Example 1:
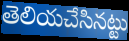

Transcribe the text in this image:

తెలియచేసినట్టు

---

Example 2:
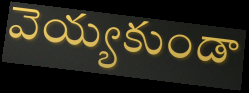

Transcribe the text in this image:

వెయ్యకుండా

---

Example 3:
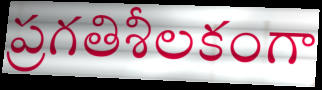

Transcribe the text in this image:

ప్రగతిశీలకంగా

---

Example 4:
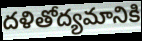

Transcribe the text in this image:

దళితోద్యమానికి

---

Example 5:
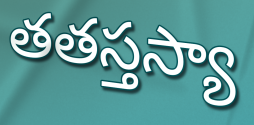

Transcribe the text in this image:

తతస్తస్యా